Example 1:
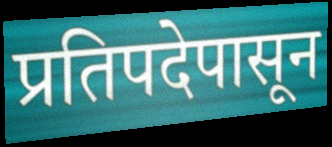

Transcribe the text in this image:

प्रतिपदेपासून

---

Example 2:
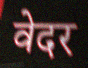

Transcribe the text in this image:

वेदर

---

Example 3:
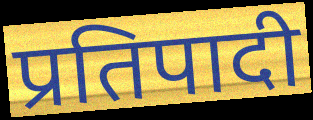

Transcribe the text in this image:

प्रतिपादी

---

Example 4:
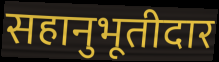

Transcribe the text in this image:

सहानुभूतीदार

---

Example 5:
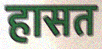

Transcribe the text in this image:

हासत